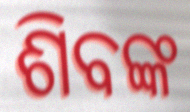
ଶିବଙ୍କ